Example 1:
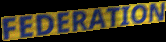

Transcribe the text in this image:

FEDERATION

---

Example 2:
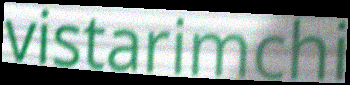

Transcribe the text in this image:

vistarimchi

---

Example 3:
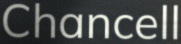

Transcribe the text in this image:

Chancell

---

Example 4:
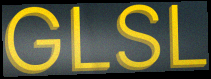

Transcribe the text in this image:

GLSL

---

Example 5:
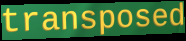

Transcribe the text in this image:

transposed